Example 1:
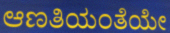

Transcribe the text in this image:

ಆಣತಿಯಂತೆಯೇ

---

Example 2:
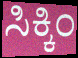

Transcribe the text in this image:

ಸಿಕ್ಕಿಂ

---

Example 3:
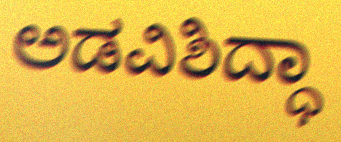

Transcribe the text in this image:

ಅಡವಿಶಿದ್ಧಾ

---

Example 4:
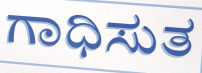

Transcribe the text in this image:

ಗಾಧಿಸುತ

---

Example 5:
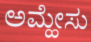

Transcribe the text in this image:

ಅಮ್ಹೇಸು